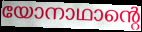
യോനാഥാന്റെ